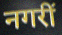
नगरीं